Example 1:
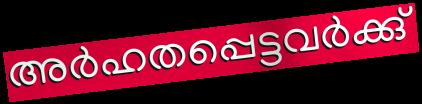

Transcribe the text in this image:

അർഹതപ്പെട്ടവർക്കു്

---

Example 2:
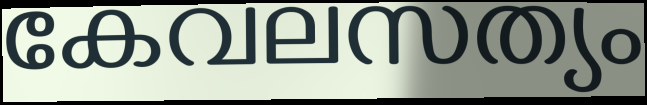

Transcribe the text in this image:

കേവലസത്യം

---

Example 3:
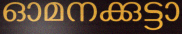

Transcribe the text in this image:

ഓമനക്കുട്ടാ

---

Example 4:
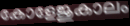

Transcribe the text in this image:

കോളേജുകാലം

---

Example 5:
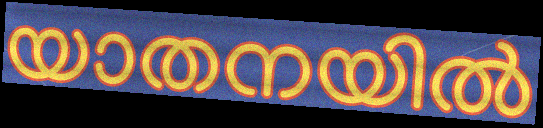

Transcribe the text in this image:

യാതനയിൽ